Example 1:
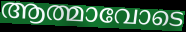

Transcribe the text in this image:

ആത്മാവോടെ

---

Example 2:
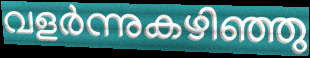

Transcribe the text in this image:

വളർന്നുകഴിഞ്ഞു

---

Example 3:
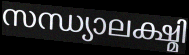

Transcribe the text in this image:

സന്ധ്യാലക്ഷ്മി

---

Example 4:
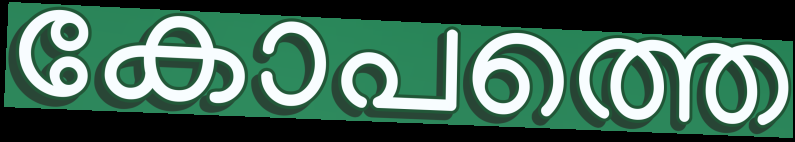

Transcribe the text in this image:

കോപത്തെ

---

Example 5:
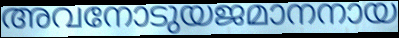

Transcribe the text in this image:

അവനോടുയജമാനനായ